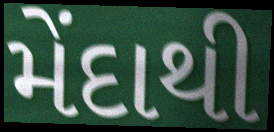
મેંદાથી